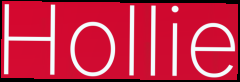
Hollie